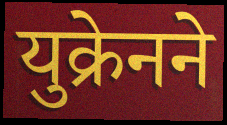
युक्रेनने